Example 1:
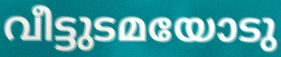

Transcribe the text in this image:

വീട്ടുടമയോടു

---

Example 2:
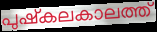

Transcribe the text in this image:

പുഷ്കലകാലത്ത്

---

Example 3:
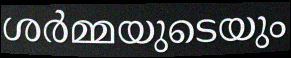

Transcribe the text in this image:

ശർമ്മയുടെയും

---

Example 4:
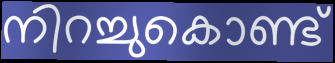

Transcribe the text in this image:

നിറച്ചുകൊണ്ട്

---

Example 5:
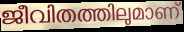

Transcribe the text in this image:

ജീവിതത്തിലുമാണ്